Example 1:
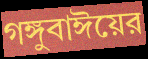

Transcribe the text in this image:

গঙ্গুবাঈয়ের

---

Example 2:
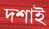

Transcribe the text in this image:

দশাই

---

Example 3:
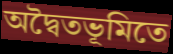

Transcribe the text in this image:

অদ্বৈতভূমিতে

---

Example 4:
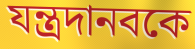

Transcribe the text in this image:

যন্ত্রদানবকে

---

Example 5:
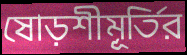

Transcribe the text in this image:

ষোড়শীমূর্তির